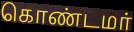
கொண்டமர்